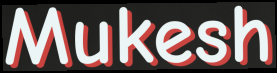
Mukesh